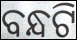
ବନ୍ଧଟି